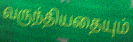
வருந்தியதையும்